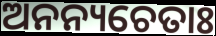
ଅନନ୍ୟଚେତାଃ